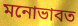
মনোভাবত